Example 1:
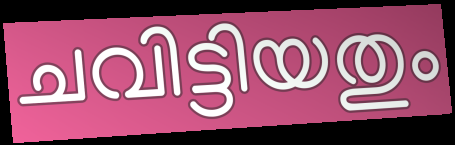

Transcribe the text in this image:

ചവിട്ടിയതും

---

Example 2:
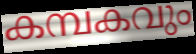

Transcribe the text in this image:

കമ്പകവും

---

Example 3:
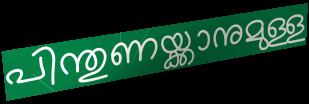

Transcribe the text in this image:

പിന്തുണയ്ക്കാനുമുള്ള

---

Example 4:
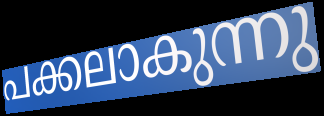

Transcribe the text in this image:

പക്കലാകുന്നു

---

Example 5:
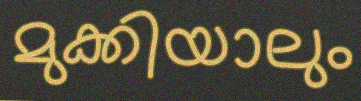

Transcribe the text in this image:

മുക്കിയാലും